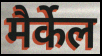
मैर्केल